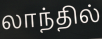
லாந்தில்